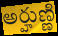
అర్హుణ్ణి